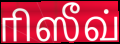
ரிஸீவ்